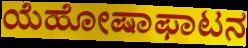
ಯೆಹೋಷಾಫಾಟನ